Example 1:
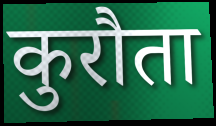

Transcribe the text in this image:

कुरौता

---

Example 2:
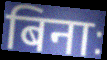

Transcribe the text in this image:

बिनाः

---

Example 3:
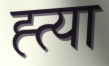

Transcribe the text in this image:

ह्त्या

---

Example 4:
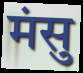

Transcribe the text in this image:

मंसु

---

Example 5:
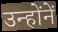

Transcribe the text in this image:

उन्होंनें